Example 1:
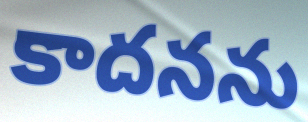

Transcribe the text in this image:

కాదనను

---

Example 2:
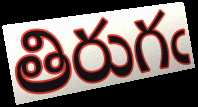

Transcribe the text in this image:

తిరుగఁ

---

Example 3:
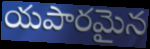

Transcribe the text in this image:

యపారమైన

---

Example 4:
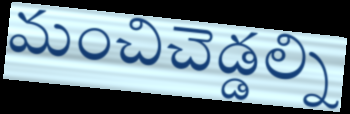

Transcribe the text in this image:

మంచిచెడ్డల్ని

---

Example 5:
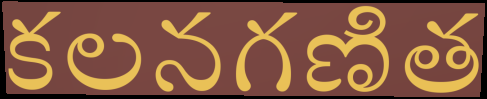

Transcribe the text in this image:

కలనగణిత